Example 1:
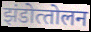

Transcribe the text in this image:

झंडोत्‍तोलन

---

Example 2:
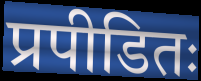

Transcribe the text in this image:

प्रपीडितः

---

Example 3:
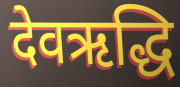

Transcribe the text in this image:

देवऋद्धि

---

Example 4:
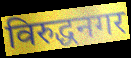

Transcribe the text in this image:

विरुद्धनगर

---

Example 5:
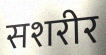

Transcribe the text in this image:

सशरीर